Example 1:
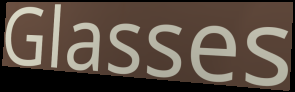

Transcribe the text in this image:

Glasses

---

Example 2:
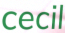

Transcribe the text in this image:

cecil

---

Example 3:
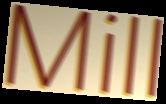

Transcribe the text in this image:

Mill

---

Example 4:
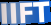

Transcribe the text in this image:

IIFT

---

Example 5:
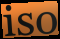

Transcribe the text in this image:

iso